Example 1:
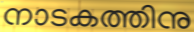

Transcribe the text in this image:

നാടകത്തിനു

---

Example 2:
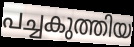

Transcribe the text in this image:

പച്ചകുത്തിയ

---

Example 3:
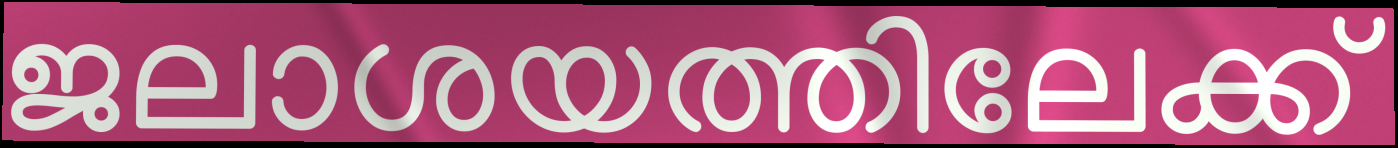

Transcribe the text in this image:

ജലാശയത്തിലേക്ക്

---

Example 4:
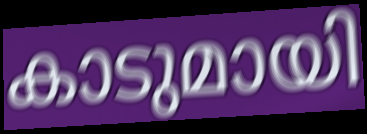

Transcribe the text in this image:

കാടുമായി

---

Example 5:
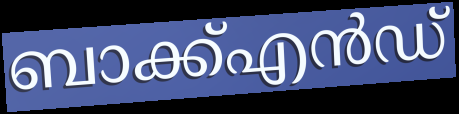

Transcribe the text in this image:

ബാക്ക്എൻഡ്